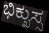
ಭಿಕ್ಖುಸ್ಸ